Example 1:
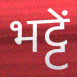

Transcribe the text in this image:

भट्टें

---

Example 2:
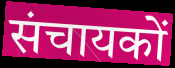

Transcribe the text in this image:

संचायकों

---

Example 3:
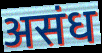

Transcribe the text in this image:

असंध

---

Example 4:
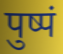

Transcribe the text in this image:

पुष्पं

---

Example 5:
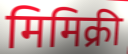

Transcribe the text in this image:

मिमिक्री